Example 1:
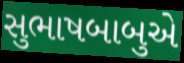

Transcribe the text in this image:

સુભાષબાબુએ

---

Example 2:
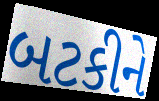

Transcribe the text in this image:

બટકીને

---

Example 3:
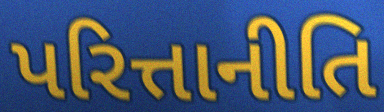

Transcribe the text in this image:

પરિત્તાનીતિ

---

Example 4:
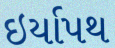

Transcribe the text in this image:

ઇર્યાપથ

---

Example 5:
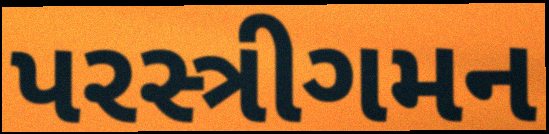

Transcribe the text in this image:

પરસ્ત્રીગમન